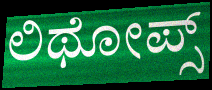
ಲಿಥೋಪ್ಸ್